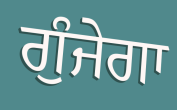
ਗੁੰਜੇਗਾ